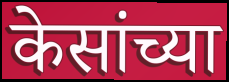
केसांच्या